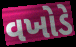
વખોડે